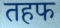
तहफ